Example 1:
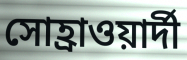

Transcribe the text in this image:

সোহ্রাওয়ার্দী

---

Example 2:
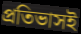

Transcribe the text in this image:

প্রতিভাসই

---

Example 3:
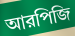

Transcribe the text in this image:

আরপিজি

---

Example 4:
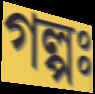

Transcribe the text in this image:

গল্পঃ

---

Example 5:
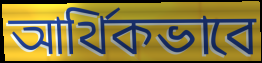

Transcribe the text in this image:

আর্থিকভাবে